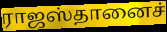
ராஜஸ்தானைச்